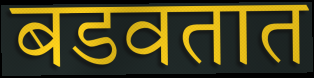
बडवतात